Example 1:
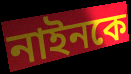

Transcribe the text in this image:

নাইনকে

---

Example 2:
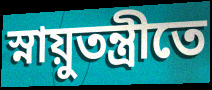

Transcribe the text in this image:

স্নায়ুতন্ত্রীতে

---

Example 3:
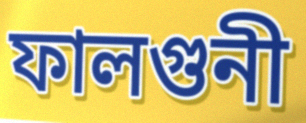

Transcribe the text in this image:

ফালগুনী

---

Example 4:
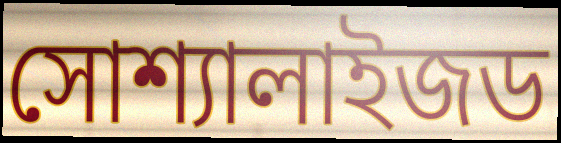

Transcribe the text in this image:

সোশ্যালাইজড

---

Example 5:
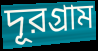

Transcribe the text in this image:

দূরগ্রাম